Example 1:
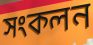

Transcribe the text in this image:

সংকলন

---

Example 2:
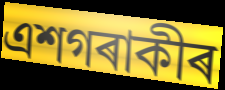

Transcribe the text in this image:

এশগৰাকীৰ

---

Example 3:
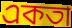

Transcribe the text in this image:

একতা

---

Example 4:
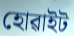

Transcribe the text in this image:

হোৱাইট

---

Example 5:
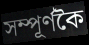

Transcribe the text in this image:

সম্পূৰ্ণকৈ